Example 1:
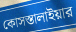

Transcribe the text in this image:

কোসস্তালাইয়ার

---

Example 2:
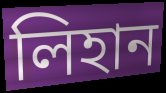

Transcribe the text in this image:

লিহান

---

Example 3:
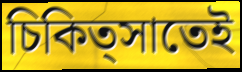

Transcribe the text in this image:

চিকিত্সাতেই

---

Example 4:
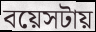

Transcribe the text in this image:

বয়েসটায়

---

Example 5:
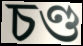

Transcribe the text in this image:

চণ্ড